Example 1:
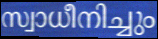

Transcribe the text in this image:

സ്വാധീനിച്ചും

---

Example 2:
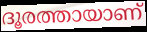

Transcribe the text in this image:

ദൂരത്തായാണ്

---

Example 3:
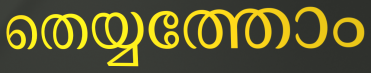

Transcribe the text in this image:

തെയ്യത്തോം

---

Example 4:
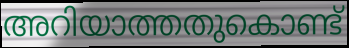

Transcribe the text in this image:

അറിയാത്തതുകൊണ്ട്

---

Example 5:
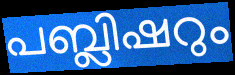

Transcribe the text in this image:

പബ്ലിഷറും